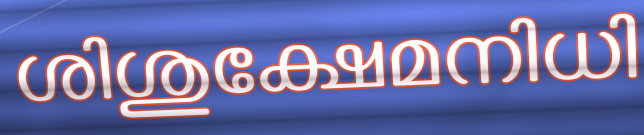
ശിശുക്ഷേമനിധി